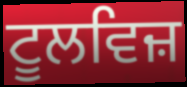
ਟੂਲਵਿਜ਼